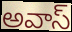
అవాస్